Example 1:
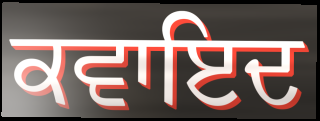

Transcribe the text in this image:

ਕਵਾਇਦ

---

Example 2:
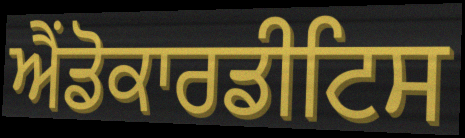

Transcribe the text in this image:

ਐਂਡੋਕਾਰਡੀਟਿਸ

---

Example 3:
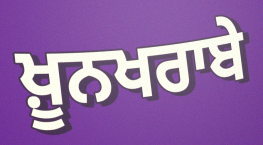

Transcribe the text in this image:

ਖ਼ੂਨਖਰਾਬੇ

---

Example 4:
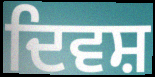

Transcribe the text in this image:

ਦਿਵਸ਼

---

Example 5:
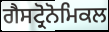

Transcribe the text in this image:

ਗੈਸਟ੍ਰੋਨੋਮਿਕਲ